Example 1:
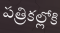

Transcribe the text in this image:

పత్రికల్లోకి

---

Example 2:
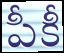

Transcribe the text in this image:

పీకీ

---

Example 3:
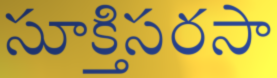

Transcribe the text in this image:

సూక్తిసరసా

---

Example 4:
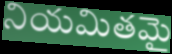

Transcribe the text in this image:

నియమితమై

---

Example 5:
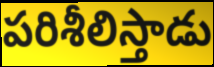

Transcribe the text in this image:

పరిశీలిస్తాడు